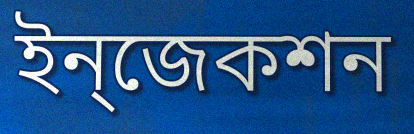
ইন্‌জেকশন